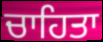
ਚਾਹਿਤਾ